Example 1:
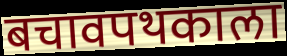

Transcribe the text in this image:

बचावपथकाला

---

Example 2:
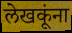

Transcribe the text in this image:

लेखकूंना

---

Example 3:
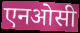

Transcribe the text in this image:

एनओसी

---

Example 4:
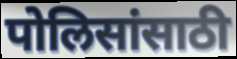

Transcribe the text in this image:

पोलिसांसाठी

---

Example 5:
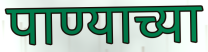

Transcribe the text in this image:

पाण्याच्या